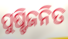
ପୁଷ୍ଟିଜନିତ